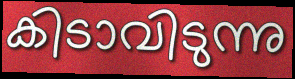
കിടാവിടുന്നു